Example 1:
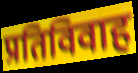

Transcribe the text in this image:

प्रतिविवाह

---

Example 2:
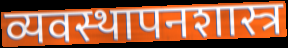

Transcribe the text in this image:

व्यवस्थापनशास्त्र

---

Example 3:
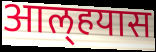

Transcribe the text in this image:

आल्हयास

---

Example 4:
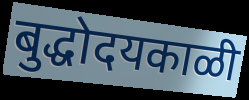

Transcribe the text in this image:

बुद्धोदयकाळी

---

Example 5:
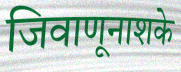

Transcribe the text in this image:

जिवाणूनाशके